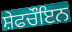
ਸ਼ੇਫਚੌਇਨ